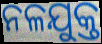
ନଳଯୁକ୍ତ